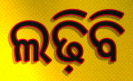
ଲଢ଼ିବି